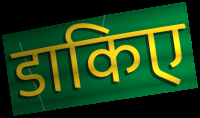
डाकिए